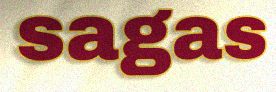
sagas